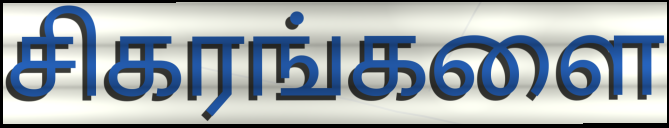
சிகரங்களை